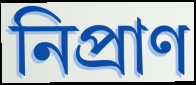
নিপ্রাণ